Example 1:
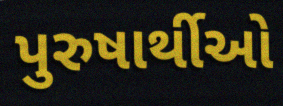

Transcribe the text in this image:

પુરુષાર્થીઓ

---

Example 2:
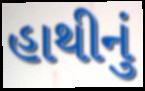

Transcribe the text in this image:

હાથીનું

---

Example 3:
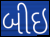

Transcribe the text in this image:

બીઇ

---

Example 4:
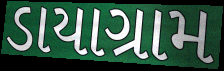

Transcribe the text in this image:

ડાયાગ્રામ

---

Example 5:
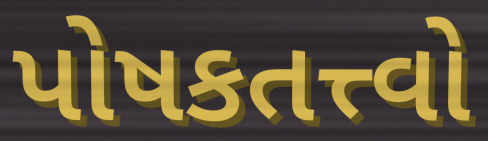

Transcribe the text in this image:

પોષકતત્ત્વો